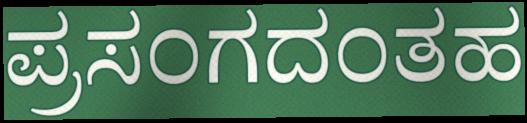
ಪ್ರಸಂಗದಂತಹ